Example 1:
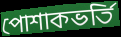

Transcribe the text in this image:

পোশাকভর্তি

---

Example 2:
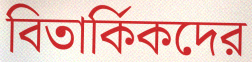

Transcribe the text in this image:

বিতার্কিকদের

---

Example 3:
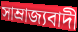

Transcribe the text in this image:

সাম্রাজ্যবাদী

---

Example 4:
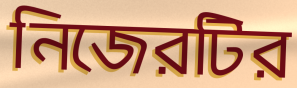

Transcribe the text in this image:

নিজেরটির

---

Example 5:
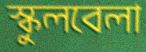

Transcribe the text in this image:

স্কুলবেলা